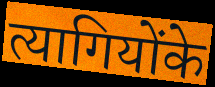
त्यागियोंके